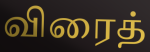
விரைத்